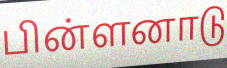
பின்ளனாடு